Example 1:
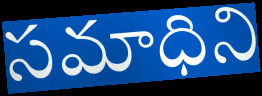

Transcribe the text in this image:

సమాధిని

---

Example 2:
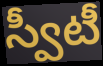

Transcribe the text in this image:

స్వీటీ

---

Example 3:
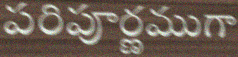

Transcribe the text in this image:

పరిపూర్ణముగా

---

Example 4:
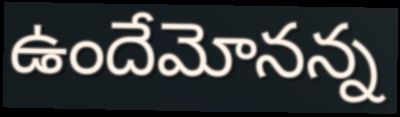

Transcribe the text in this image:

ఉందేమోనన్న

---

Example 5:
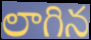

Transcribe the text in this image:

లాగిన